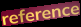
reference